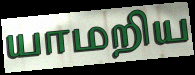
யாமறிய